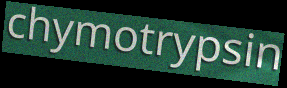
chymotrypsin